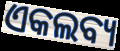
ଏକଲବ୍ୟ